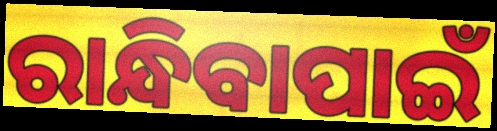
ରାନ୍ଧିବାପାଇଁ